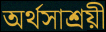
অর্থসাশ্রয়ী